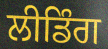
ਲੀਡਿੰਗ